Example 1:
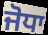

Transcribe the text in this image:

ਜੋਧਾ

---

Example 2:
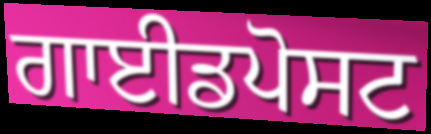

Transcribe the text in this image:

ਗਾਈਡਪੋਸਟ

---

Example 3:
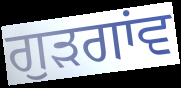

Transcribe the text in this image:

ਗੁਡ਼ਗਾਂਵ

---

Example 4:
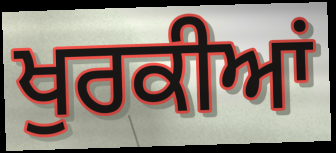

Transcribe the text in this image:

ਖੁਰਕੀਆਂ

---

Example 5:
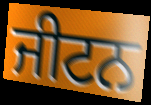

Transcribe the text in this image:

ਜੀਟਨ